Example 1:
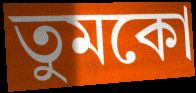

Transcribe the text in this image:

তুমকো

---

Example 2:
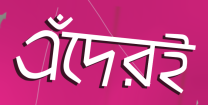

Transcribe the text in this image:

এঁদেরই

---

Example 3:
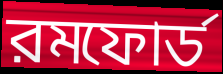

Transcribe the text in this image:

রমফোর্ড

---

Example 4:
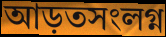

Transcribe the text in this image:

আড়তসংলগ্ন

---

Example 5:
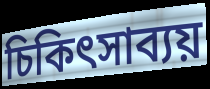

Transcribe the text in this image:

চিকিৎসাব্যয়